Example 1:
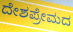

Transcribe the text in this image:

ದೇಶಪ್ರೇಮದ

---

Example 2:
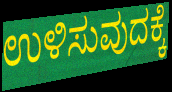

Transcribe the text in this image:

ಉಳಿಸುವುದಕ್ಕೆ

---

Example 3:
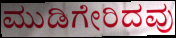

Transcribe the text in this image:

ಮುಡಿಗೇರಿದವು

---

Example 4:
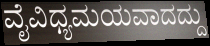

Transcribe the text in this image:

ವೈವಿಧ್ಯಮಯವಾದದ್ದು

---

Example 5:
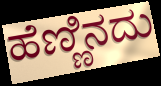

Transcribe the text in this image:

ಹೆಣ್ಣಿನದು